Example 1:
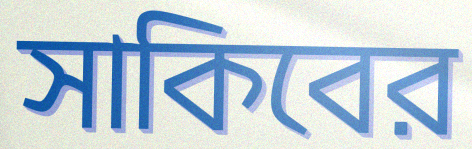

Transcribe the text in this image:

সাকিবের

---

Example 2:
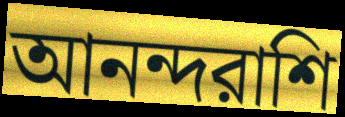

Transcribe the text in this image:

আনন্দরাশি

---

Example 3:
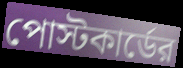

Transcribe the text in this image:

পোস্টকার্ডের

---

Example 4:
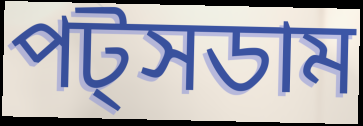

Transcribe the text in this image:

পট্‌সডাম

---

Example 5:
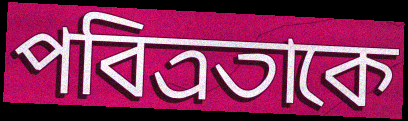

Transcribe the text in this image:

পবিত্রতাকে